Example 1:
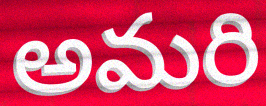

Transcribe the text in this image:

అమరి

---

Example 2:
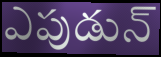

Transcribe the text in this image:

ఎపుడున్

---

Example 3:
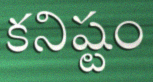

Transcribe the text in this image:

కనిష్టం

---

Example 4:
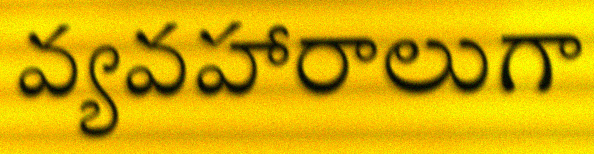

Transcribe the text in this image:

వ్యవహారాలుగా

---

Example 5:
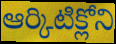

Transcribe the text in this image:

ఆర్కిటిక్లోని